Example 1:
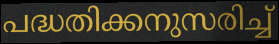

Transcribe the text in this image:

പദ്ധതിക്കനുസരിച്ച്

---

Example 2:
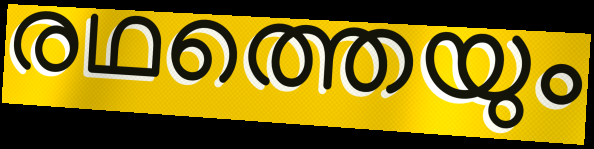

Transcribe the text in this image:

രഥത്തെയും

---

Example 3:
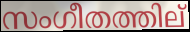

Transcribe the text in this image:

സംഗീതത്തില്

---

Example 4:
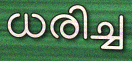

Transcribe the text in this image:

ധരിച്ച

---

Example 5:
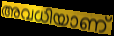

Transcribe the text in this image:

അവധിയാണ്